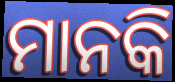
ମାନକି